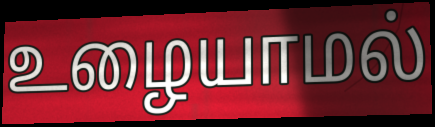
உழையாமல்